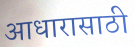
आधारासाठी